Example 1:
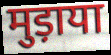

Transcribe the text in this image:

मुड़ाया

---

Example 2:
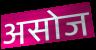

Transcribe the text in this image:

असोज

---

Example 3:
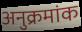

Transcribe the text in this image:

अनुक्रमांक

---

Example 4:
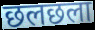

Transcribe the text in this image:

छलछला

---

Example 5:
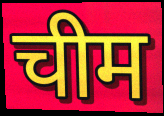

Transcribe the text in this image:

चीम